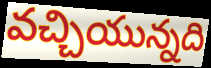
వచ్చియున్నది